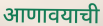
आणावयाची